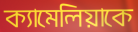
ক্যামেলিয়াকে